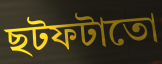
ছটফটাতো